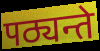
पठ्यन्ते